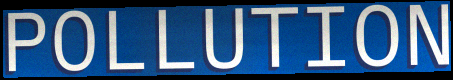
POLLUTION